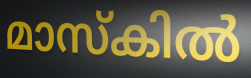
മാസ്കിൽ